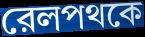
রেলপথকে